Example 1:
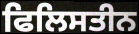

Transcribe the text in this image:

ਫਿਲਿਸਤੀਨ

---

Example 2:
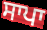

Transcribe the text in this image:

ਸਾਪਾ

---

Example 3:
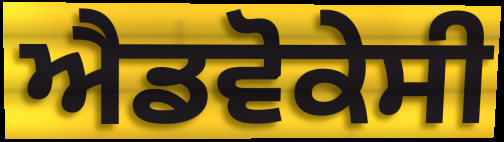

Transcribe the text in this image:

ਐਡਵੋਕੇਸੀ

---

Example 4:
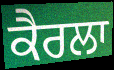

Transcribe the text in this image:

ਕੈਰਲਾ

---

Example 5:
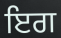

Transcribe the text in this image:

ਇਗ